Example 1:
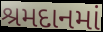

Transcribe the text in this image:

શ્રમદાનમાં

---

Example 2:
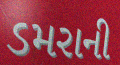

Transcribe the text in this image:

ડમરાની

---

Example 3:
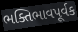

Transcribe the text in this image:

ભક્તિભાવપૂર્વક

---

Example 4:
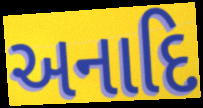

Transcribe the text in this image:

અનાદિ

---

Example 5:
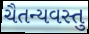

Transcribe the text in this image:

ચૈતન્યવસ્તુ